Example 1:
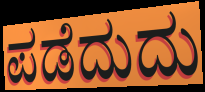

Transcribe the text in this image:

ಪಡೆದುದು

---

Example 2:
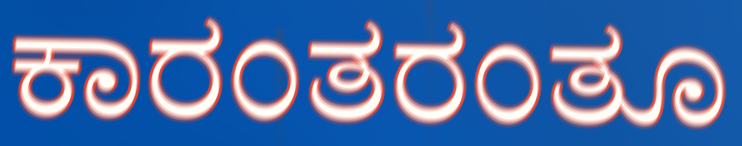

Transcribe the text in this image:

ಕಾರಂತರಂತೂ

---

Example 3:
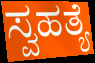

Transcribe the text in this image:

ಸ್ವಹತ್ಯೆ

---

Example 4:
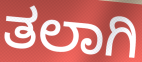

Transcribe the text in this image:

ತಲಾಗಿ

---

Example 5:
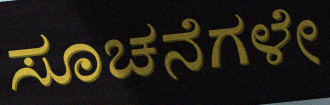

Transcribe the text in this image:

ಸೂಚನೆಗಳೇ